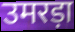
उमरड़ा